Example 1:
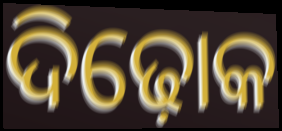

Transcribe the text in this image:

ଦିଢ଼ୋକ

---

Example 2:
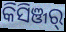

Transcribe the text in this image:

କିସିଞ୍ଜର୍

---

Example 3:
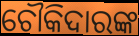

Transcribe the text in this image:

ଚୌକିଦାରଙ୍କ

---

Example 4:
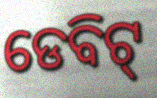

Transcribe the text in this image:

ଡେବିଟ୍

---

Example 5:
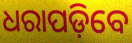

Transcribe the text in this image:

ଧରାପଡ଼ିବେ